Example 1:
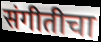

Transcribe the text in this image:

संगीतीचा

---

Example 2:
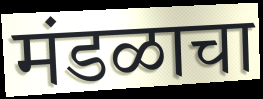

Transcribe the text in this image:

मंडळाचा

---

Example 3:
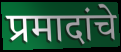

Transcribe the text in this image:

प्रमादांचे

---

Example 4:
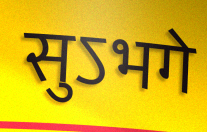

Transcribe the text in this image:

सुऽभगे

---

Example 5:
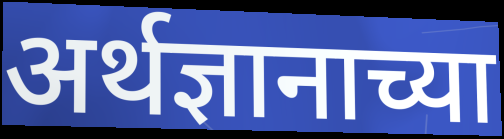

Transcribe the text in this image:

अर्थज्ञानाच्या